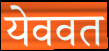
येववत